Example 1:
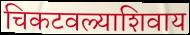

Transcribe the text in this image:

चिकटवल्याशिवाय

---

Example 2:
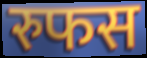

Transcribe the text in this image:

रुफस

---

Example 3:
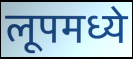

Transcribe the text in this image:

लूपमध्ये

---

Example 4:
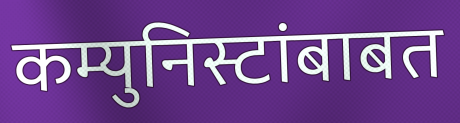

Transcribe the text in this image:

कम्युनिस्टांबाबत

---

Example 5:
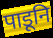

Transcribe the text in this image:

पाडूनि